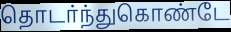
தொடர்ந்துகொண்டே